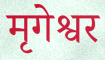
मृगेश्वर